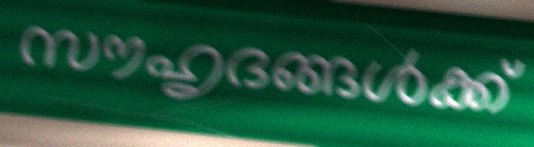
സൗഹൃദങ്ങൾക്ക്